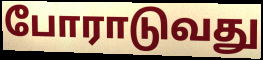
போராடுவது